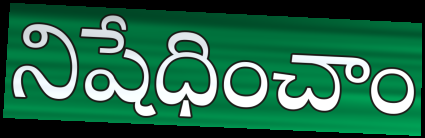
నిషేధించాం